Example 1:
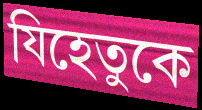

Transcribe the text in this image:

যিহেতুকে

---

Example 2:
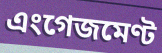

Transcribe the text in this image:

এংগেজমেণ্ট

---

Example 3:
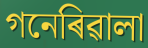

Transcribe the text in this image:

গনেৰিৱালা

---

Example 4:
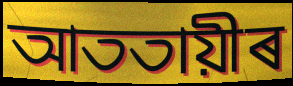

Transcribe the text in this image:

আততায়ীৰ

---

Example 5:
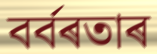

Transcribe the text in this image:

বৰ্বৰতাৰ